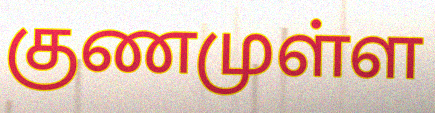
குணமுள்ள